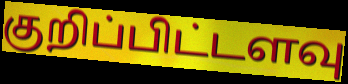
குறிப்பிட்டளவு